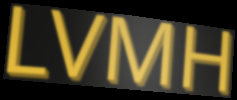
LVMH